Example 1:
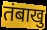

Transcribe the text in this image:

तंबाखु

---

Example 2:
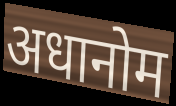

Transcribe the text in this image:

अधानोम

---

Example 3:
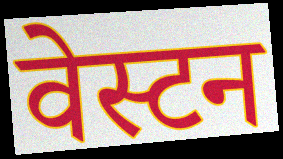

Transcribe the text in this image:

वेस्टन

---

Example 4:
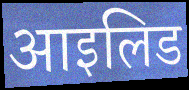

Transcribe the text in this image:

आइलिड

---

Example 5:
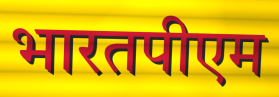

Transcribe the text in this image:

भारतपीएम